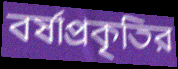
বর্ষাপ্রকৃতির